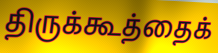
திருக்கூத்தைக்